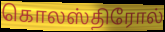
கொலஸ்திரோல்